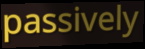
passively